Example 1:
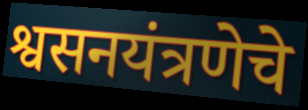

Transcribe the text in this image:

श्वसनयंत्रणेचे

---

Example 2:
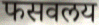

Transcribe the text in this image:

फसवलय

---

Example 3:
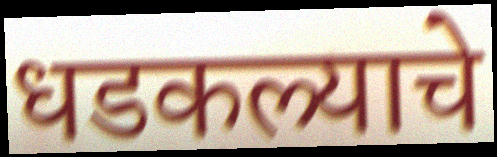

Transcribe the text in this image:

धडकल्याचे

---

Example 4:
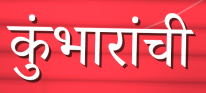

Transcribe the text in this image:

कुंभारांची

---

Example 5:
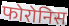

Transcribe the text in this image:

फोरोनिस